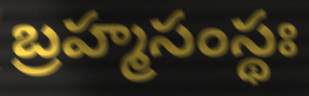
బ్రహ్మసంస్థః